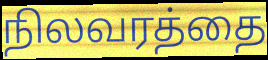
நிலவரத்தை